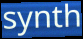
synth